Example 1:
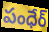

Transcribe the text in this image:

పంధేర్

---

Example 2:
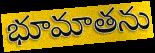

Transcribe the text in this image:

భూమాతను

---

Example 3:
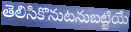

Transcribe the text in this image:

తెలిసికొనుటనుబట్టియే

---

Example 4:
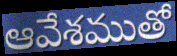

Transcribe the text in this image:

ఆవేశముతో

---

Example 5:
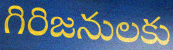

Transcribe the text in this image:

గిరిజనులకు